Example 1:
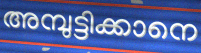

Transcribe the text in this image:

അമ്പുട്ടിക്കാനെ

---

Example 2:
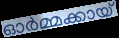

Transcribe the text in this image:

ഓർമ്മക്കായ്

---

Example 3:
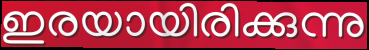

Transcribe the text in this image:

ഇരയായിരിക്കുന്നു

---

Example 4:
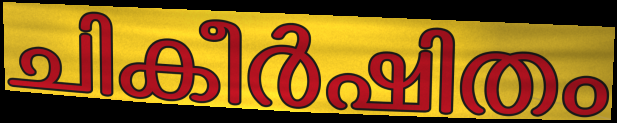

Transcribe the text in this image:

ചികീർഷിതം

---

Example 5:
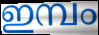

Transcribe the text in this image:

ഇമ്പം